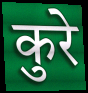
कुरे